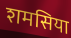
शमसिया